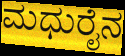
ಮಧುರೈನ